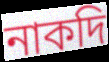
নাকদি